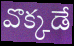
వొక్కడే